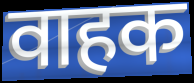
वाहक